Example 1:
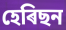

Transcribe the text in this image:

হেৰিছন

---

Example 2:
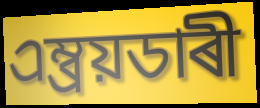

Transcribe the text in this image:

এম্ব্ৰয়ডাৰী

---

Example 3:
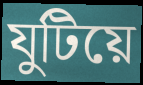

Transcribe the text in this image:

যুটিয়ে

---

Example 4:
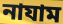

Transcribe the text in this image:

নাযাম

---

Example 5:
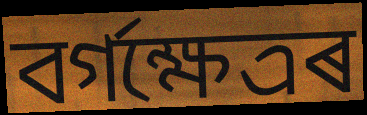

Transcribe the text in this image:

বৰ্গক্ষেত্ৰৰ